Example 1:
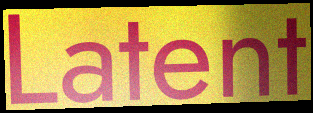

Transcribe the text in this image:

Latent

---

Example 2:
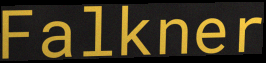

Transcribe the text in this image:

Falkner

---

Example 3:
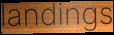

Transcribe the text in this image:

landings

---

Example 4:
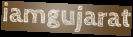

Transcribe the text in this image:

iamgujarat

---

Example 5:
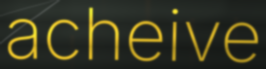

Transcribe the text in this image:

acheive